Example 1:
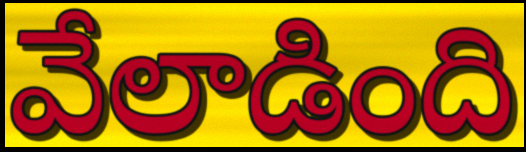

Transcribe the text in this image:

వేలాడింది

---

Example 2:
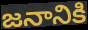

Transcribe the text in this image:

జనానికి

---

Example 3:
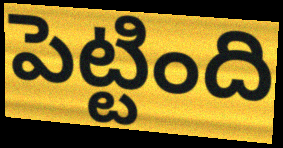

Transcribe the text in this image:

పెట్టింది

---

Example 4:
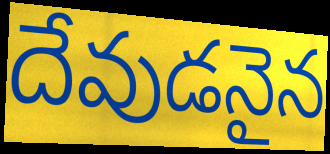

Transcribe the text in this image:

దేవుడనైన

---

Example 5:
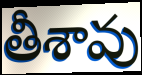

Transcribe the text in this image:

తీశావు